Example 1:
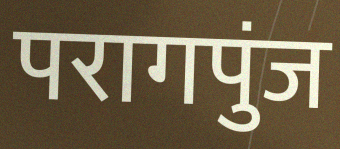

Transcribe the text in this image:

परागपुंज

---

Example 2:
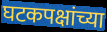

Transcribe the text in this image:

घटकपक्षांच्या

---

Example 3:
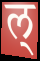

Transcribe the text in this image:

ल्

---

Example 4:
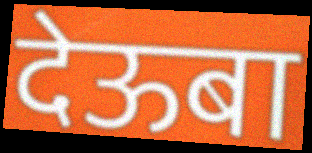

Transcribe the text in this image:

देऊबा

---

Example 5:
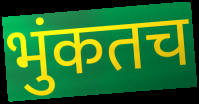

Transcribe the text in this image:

भुंकतच